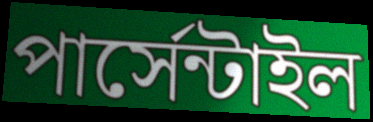
পার্সেন্টাইল